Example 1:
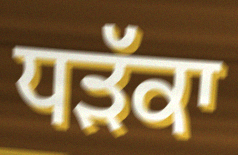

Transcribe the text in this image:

ਧੜੱਕਾ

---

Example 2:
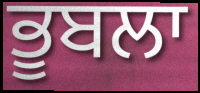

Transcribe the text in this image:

ਭੂਬਲਾ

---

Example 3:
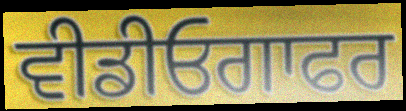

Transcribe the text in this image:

ਵੀਡੀਓਗਾਫਰ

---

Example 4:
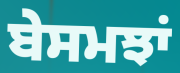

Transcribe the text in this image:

ਬੇਸਮਝਾਂ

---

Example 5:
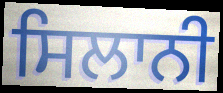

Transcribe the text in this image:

ਸਿਲਾਨੀ